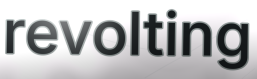
revolting